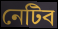
নেটিব